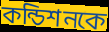
কন্ডিশনকে